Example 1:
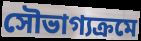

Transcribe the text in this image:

সৌভাগ্যক্ৰমে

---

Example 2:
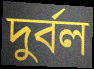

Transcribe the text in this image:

দুৰ্বল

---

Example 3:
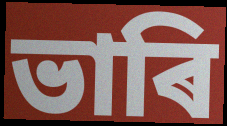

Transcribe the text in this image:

ভাৰি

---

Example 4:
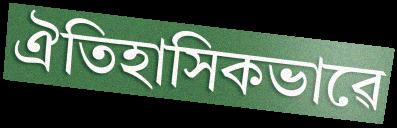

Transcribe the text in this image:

ঐতিহাসিকভাৱে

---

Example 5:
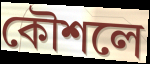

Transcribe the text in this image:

কৌশলে